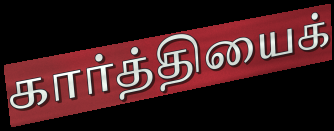
கார்த்தியைக்